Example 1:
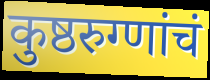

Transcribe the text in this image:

कुष्ठरुग्णांचं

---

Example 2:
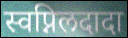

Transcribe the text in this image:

स्वप्निलदादा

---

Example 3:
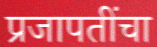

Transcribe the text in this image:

प्रजापतींचा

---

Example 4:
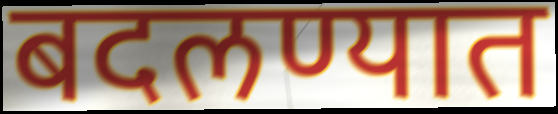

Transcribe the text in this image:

बदलण्यात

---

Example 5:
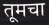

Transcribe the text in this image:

तूमचा